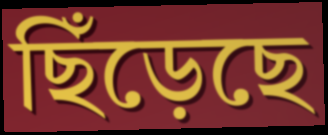
ছিঁড়েছে